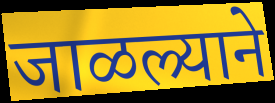
जाळल्याने